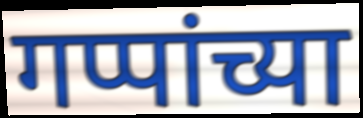
गप्पांच्या